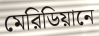
মেরিডিয়ানে